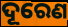
ଦୂରେଣ